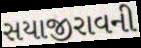
સયાજીરાવની